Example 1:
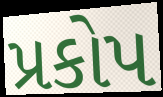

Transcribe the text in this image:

પ્રકોપ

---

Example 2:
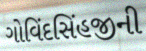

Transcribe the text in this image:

ગોવિંદસિંહજીની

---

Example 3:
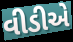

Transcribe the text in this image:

વીડીએ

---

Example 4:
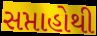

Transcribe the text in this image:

સપ્તાહોથી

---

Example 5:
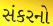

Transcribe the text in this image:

સંકરનો